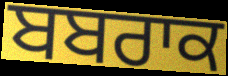
ਬਬਰਾਕ